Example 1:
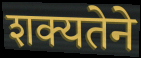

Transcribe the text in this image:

शक्यतेने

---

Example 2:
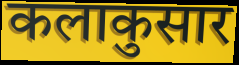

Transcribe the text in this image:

कलाकुसार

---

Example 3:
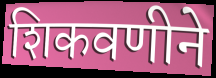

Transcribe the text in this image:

शिकवणीने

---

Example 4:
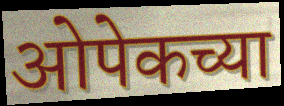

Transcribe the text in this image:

ओपेकच्या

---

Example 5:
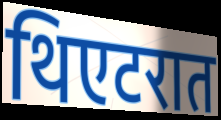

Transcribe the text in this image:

थिएटरात